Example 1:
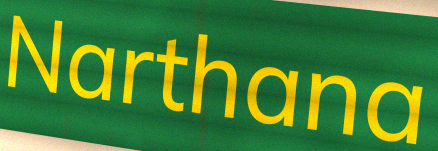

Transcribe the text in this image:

Narthana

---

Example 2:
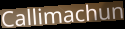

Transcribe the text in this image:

Callimachun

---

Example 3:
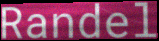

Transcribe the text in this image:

Randel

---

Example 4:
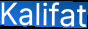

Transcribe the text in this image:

Kalifat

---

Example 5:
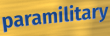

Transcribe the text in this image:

paramilitary